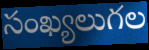
సంఖ్యలుగల